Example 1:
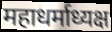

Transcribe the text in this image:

महाधर्माध्यक्ष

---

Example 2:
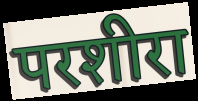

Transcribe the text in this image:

परशीरा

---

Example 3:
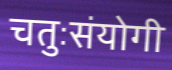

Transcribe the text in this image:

चतुःसंयोगी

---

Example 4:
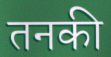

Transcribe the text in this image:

तनकी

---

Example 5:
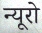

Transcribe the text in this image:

न्यूरो